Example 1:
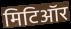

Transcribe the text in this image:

मिटिऑर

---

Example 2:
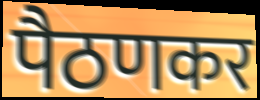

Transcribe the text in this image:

पैठणकर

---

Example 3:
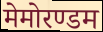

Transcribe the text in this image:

मेमोरण्डम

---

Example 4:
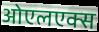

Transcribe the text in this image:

ओएलएक्स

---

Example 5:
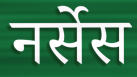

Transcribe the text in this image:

नर्सेस